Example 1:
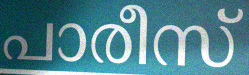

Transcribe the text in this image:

പാരീസ്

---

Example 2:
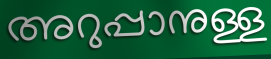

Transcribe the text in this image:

അറുപ്പാനുള്ള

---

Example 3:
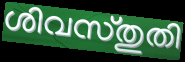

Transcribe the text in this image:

ശിവസ്തുതി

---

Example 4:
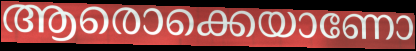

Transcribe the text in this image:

ആരൊക്കെയാണോ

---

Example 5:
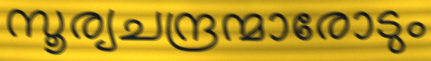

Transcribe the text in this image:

സൂര്യചന്ദ്രന്മാരോടും